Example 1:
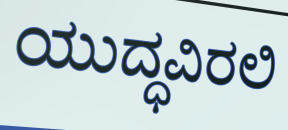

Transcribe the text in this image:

ಯುದ್ಧವಿರಲಿ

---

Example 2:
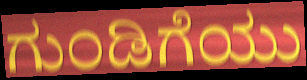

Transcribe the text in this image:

ಗುಂಡಿಗೆಯು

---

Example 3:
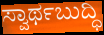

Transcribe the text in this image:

ಸ್ವಾರ್ಥಬುದ್ಧಿ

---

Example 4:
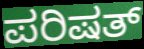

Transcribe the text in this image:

ಪರಿಷತ್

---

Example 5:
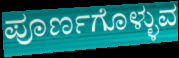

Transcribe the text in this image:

ಪೂರ್ಣಗೊಳ್ಳುವ